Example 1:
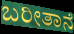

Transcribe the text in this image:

ಬರೀತಾನೆ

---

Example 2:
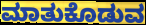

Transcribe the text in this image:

ಮಾತುಕೊಡುವ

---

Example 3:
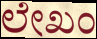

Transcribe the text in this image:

ಲೇಖಂ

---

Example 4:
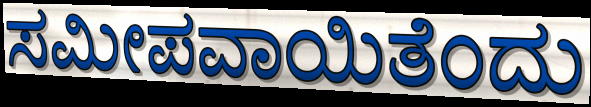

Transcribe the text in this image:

ಸಮೀಪವಾಯಿತೆಂದು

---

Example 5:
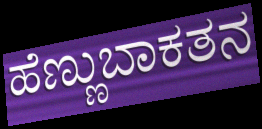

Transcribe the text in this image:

ಹೆಣ್ಣುಬಾಕತನ